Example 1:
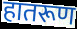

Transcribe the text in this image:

हातरूण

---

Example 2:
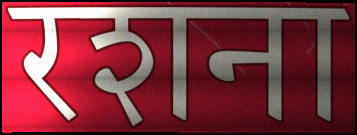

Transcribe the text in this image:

रशना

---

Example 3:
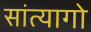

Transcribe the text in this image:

सांत्यागो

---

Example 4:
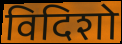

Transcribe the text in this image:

विदिशो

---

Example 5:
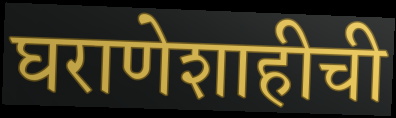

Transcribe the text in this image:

घराणेशाहीची